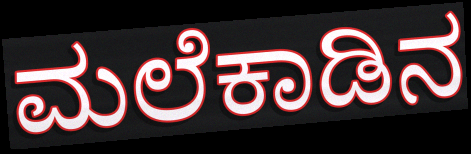
ಮಲೆಕಾಡಿನ